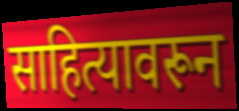
साहित्यावरून